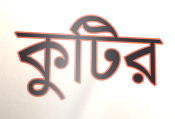
কুটির